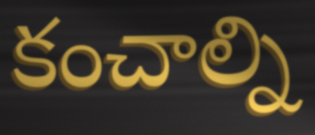
కంచాల్ని